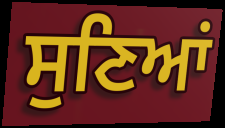
ਸੁਣਿਆਂ